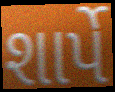
શાર્પે